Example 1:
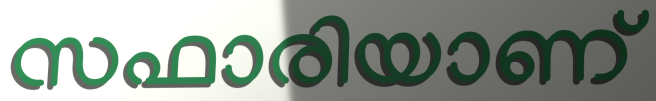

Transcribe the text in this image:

സഫാരിയാണ്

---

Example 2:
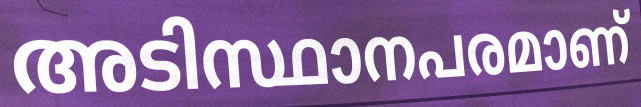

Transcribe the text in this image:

അടിസ്ഥാനപരമാണ്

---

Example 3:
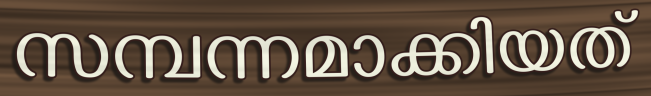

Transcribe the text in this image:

സമ്പന്നമാക്കിയത്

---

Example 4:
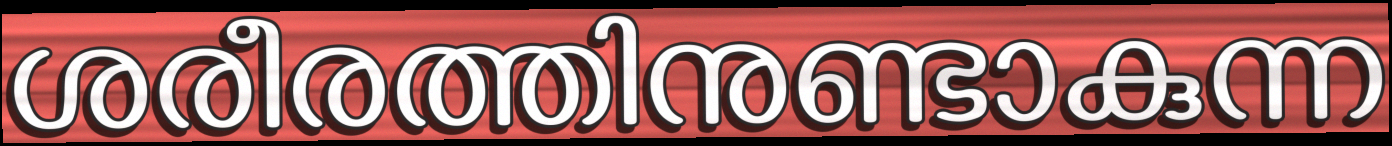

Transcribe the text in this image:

ശരീരത്തിനുണ്ടാകുന്ന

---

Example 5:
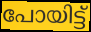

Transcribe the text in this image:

പോയിട്ട്